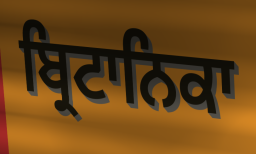
ਬ੍ਰਿਟਾਨਿਕਾ